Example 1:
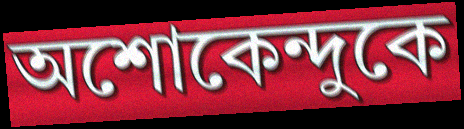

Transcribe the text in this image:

অশোকেন্দুকে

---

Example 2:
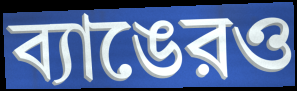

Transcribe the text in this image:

ব্যাঙেরও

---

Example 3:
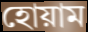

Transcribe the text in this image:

হোয়াম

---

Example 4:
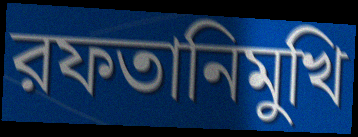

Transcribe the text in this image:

রফতানিমুখি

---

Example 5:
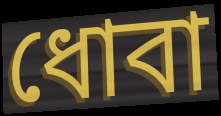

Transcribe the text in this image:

ধোবা